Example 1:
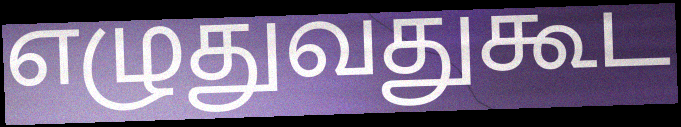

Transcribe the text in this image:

எழுதுவதுகூட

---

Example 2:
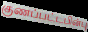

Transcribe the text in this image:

குணப்பட்டபின்பு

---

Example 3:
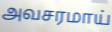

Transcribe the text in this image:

அவசரமாய்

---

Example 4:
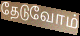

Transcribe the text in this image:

தேடுவோம்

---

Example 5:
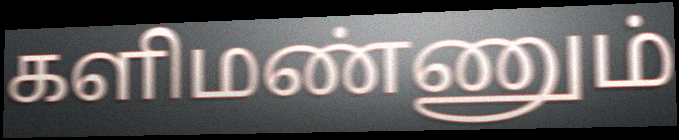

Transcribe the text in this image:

களிமண்ணும்